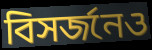
বিসর্জনেও